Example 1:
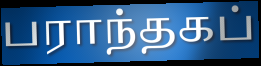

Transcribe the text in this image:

பராந்தகப்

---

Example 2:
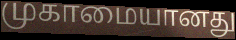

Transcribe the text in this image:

முகாமையானது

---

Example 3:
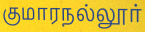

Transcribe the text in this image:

குமாரநல்லூர்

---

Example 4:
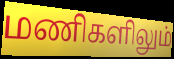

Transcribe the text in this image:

மணிகளிலும்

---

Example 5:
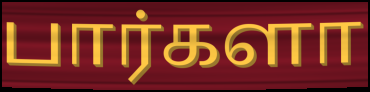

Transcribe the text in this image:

பார்களா